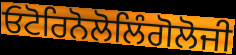
ਓਟੋਰਿਨੋਲੋਲਿੰਗੋਲੋਜੀ